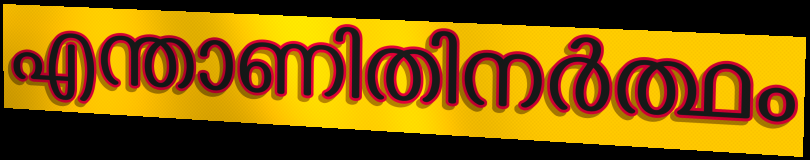
എന്താണിതിനർത്ഥം